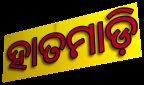
ହାତମାଡ଼ି